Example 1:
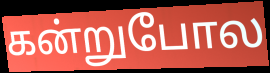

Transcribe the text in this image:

கன்றுபோல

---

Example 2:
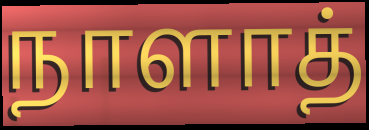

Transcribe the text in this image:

நாளாத்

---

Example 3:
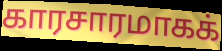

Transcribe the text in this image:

காரசாரமாகக்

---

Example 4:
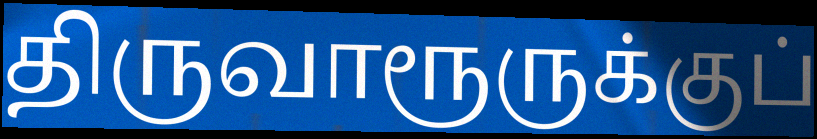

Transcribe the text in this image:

திருவாரூருக்குப்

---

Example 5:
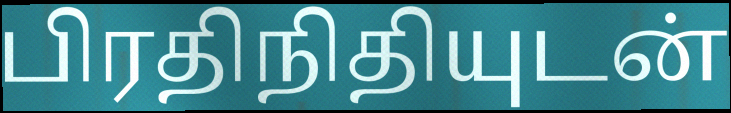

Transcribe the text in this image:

பிரதிநிதியுடன்